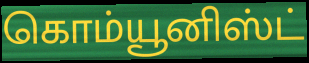
கொம்யூனிஸ்ட்